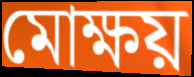
মোক্ষয়